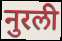
नुरली